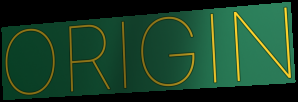
ORIGIN